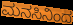
ಮನಸಿನಿಂದ